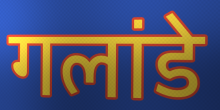
गलांडे